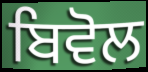
ਬਿਵੋਲ